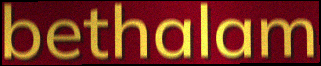
bethalam